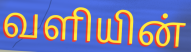
வளியின்